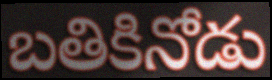
బతికినోడు